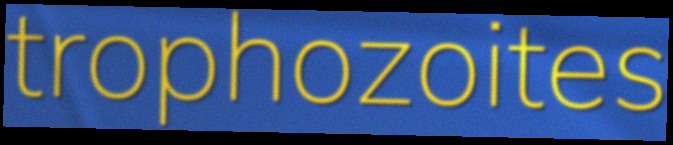
trophozoites